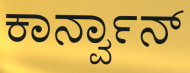
ಕಾರ್ನ್ವಾನ್